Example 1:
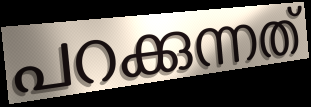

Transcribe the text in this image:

പറക്കുന്നത്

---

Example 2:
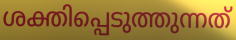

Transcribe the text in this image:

ശക്തിപ്പെടുത്തുന്നത്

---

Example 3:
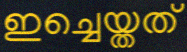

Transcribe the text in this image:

ഇച്ചെയ്തത്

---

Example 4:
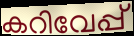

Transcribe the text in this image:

കറിവേപ്പ്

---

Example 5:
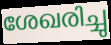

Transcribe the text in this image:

ശേഖരിച്ചു